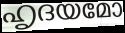
ഹൃദയമോ